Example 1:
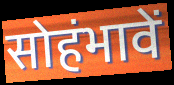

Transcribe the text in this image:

सोहंभावें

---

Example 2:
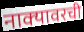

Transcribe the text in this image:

नाक्यावरची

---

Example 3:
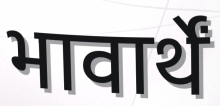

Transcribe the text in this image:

भावार्थें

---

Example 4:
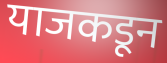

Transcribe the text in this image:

याजकडून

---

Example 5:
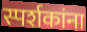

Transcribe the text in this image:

स्पर्शकांना